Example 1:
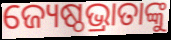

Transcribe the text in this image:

ଜ୍ୟେଷ୍ଠଭ୍ରାତାଙ୍କୁ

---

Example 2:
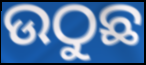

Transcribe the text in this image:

ଉଠୁଛ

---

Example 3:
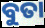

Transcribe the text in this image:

ବୁତା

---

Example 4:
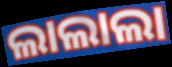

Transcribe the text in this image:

ଲାଲାଲା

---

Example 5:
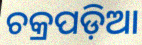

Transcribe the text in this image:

ଚକ୍ରପଡ଼ିଆ